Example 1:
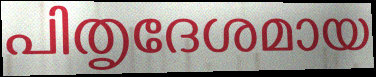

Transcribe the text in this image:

പിതൃദേശമായ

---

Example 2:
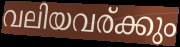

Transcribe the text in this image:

വലിയവര്ക്കും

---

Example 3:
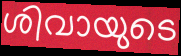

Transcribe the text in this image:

ശിവായുടെ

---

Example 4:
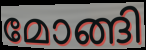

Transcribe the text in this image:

മോങ്ങി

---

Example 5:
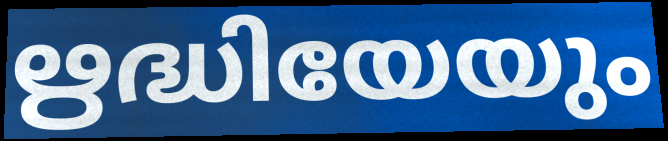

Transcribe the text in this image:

ഋദ്ധിയേയും